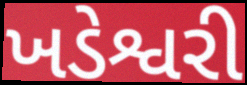
ખડેશ્વરી